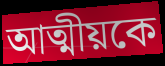
আত্মীয়কে